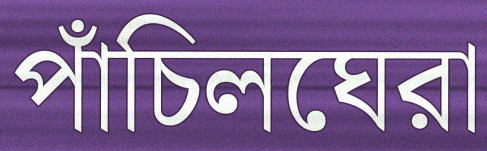
পাঁচিলঘেরা